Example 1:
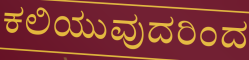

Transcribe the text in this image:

ಕಲಿಯುವುದರಿಂದ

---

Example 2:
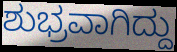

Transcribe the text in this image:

ಶುಭ್ರವಾಗಿದ್ದು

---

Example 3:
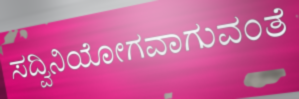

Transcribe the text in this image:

ಸದ್ವಿನಿಯೋಗವಾಗುವಂತೆ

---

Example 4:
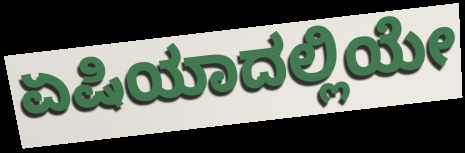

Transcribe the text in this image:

ಏಷಿಯಾದಲ್ಲಿಯೇ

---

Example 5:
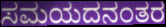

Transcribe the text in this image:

ಸಮಯದನಂತರ